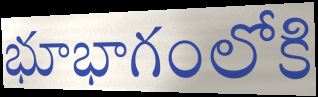
భూభాగంలోకి